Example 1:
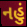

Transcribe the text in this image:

નહું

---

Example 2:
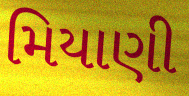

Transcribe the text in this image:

મિયાણી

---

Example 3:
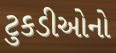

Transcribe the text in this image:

ટુકડીઓનો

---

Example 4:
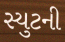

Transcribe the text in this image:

સ્યુટની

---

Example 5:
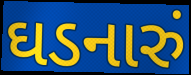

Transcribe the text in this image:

ઘડનારું